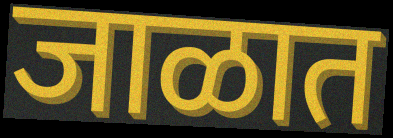
जाळात